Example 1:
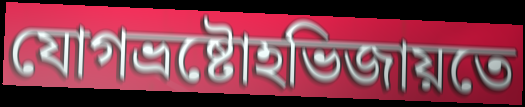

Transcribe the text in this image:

যোগভ্রষ্টোহভিজায়তে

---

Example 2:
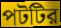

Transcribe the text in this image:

পটটির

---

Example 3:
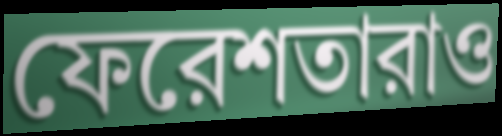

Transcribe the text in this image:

ফেরেশতারাও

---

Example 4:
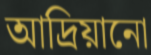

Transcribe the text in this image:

আদ্রিয়ানো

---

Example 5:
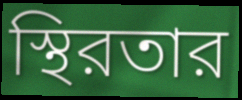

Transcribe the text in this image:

স্থিরতার